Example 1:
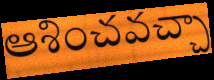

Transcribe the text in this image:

ఆశించవచ్చా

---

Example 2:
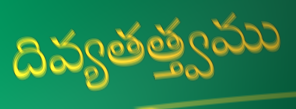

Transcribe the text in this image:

దివ్యతత్త్వము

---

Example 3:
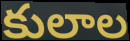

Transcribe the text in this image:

కులాల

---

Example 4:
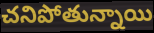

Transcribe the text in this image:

చనిపోతున్నాయి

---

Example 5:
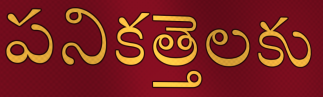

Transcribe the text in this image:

పనికత్తెలకు